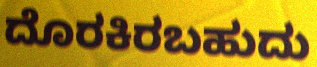
ದೊರಕಿರಬಹುದು